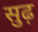
सुढ़